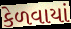
કેળવાયાં